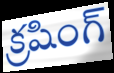
క్రషింగ్